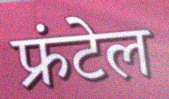
फ्रंटेल